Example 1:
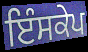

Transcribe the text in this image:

ਇੰਸਕੇਪ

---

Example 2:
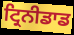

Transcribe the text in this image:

ਟ੍ਰਿਨੀਡਾਡ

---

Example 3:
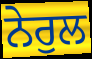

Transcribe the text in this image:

ਨੇਰੁਲ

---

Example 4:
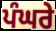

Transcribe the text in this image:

ਪੰਘਰੇ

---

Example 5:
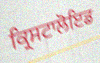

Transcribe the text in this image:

ਕ੍ਰਿਸਟਾਲੋਇਡ